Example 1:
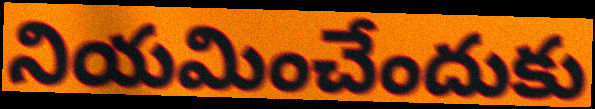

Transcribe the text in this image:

నియమించేందుకు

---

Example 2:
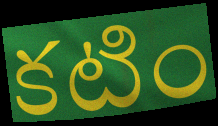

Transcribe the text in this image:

కటిం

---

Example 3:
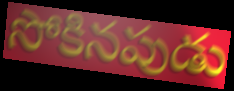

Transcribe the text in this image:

సోకినపుడు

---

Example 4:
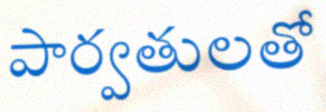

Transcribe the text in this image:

పార్వతులతో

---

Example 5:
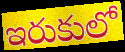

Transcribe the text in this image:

ఇరుకులో